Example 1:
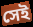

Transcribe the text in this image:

সেই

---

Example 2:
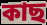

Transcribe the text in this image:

কাছ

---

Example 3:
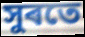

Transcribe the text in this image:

সুৰতে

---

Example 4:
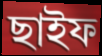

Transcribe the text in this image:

ছাইফ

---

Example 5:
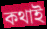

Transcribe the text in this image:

কথাই